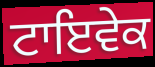
ਟਾਇਵੇਕ